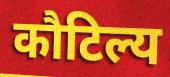
कौटिल्य